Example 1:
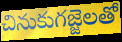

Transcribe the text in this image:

చినుకుగజ్జెలతో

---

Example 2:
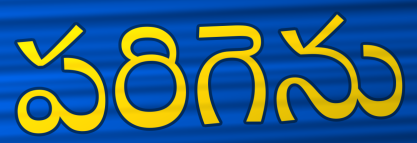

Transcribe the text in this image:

పరిగెను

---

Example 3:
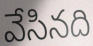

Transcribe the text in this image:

వేసినది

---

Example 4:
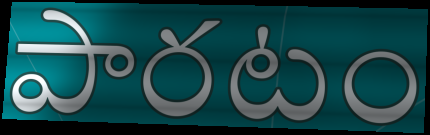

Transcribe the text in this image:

పారటం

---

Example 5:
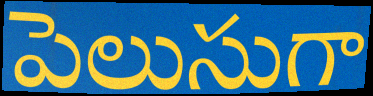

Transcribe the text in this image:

పెలుసుగా